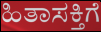
ಹಿತಾಸಕ್ತಿಗೆ